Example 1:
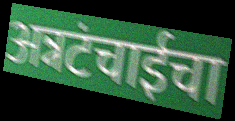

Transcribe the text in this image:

अन्नटंचाईचा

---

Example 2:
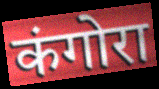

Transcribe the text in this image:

कंगोरा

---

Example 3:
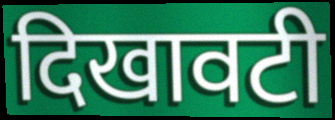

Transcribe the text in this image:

दिखावटी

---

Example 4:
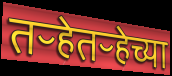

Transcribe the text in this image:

तऱ्हेतऱ्हेच्या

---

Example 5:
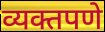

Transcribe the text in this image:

व्यक्तपणे